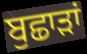
ਬੁਛਾੜਾਂ